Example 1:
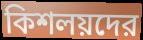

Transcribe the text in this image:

কিশলয়দের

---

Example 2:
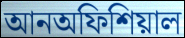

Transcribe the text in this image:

আনঅফিশিয়াল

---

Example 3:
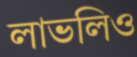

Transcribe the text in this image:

লাভলিও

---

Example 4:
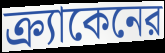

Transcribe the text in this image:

ক্র্যাকেনের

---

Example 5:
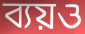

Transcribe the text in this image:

ব্যয়ও